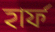
হার্ফ